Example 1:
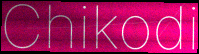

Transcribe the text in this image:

Chikodi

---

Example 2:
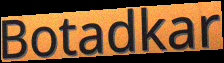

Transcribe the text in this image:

Botadkar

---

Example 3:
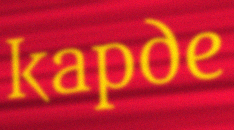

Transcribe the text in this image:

kapde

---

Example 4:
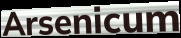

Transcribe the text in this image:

Arsenicum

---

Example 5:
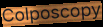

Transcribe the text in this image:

Colposcopy